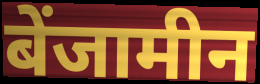
बेंजामीन